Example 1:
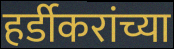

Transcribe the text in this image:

हर्डीकरांच्या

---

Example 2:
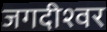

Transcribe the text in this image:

जगदीश्वर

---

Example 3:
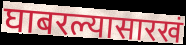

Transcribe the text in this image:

घाबरल्यासारखं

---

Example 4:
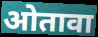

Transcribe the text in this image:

ओतावा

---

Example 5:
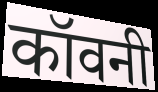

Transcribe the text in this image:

कॉवनी